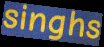
singhs